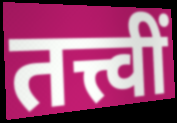
तत्त्वीं